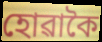
হোৱাকৈ